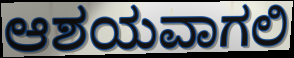
ಆಶಯವಾಗಲಿ